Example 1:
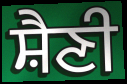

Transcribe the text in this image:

ਸ਼ੈਣੀ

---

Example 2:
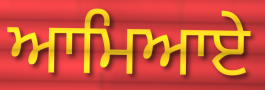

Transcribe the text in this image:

ਆਮਿਆਏ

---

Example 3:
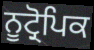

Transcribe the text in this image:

ਨੂਟ੍ਰੋਪਿਕ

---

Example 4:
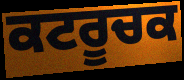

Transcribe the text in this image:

ਕਟਰੂਚਕ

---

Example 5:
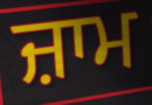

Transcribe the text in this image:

ਜ਼ਾਮ